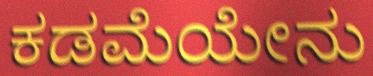
ಕಡಮೆಯೇನು